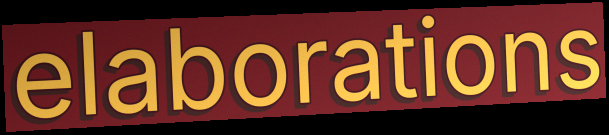
elaborations